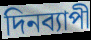
দিনব্যাপী